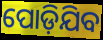
ପୋଡ଼ିଯିବ